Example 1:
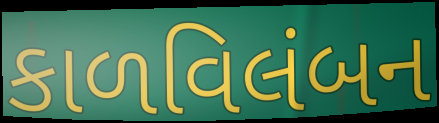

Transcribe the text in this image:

કાળવિલંબન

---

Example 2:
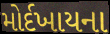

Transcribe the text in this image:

મોર્દખાયના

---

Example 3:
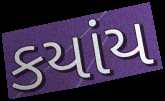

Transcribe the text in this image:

કયાંય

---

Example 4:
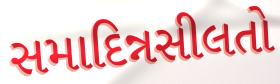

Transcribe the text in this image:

સમાદિન્નસીલતો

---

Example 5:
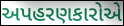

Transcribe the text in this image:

અપહરણકારોએ